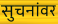
सुचनांवर